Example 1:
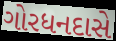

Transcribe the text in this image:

ગોરધનદાસે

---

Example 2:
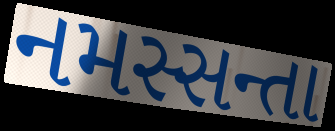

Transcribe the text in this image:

નમસ્સન્તા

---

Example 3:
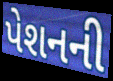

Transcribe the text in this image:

પેશનની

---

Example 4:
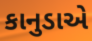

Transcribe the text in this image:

કાનુડાએ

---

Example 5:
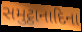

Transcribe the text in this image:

સમુટ્ઠાનાદિના